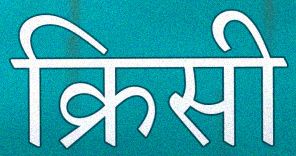
क्रिसी